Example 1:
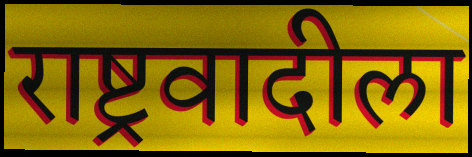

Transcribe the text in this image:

राष्ट्रवादीला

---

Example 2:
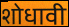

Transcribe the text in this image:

शोधावी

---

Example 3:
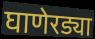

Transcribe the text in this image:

घाणेरड्या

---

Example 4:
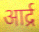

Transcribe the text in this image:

आर्द्र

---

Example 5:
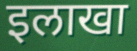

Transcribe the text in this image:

इलाखा